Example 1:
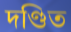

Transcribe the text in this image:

দণ্ডিত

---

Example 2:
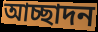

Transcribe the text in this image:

আচ্ছাদন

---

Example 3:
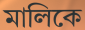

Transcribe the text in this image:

মালিকে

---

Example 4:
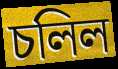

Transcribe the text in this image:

চলিল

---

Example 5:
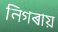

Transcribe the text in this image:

নিগৰায়